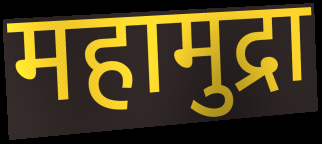
महामुद्रा